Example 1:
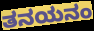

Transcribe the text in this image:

ತನಯನಂ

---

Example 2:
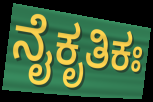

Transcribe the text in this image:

ನೈಕೃತಿಕಃ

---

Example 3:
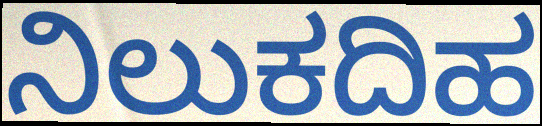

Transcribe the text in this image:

ನಿಲುಕದಿಹ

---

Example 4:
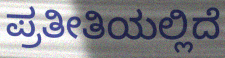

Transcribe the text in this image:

ಪ್ರತೀತಿಯಲ್ಲಿದೆ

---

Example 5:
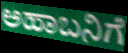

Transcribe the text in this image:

ಅಹಾಬನಿಗೆ